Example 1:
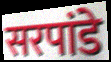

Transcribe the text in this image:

सरपांडे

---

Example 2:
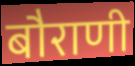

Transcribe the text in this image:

बौराणी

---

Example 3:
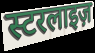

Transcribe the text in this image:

स्टरलाइज़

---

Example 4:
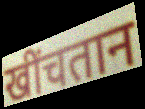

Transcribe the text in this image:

खींचतान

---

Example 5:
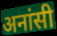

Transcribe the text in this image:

अनांसी